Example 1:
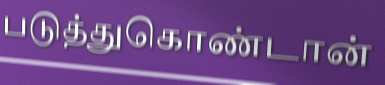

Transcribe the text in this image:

படுத்துகொண்டான்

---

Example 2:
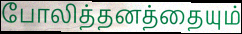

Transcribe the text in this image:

போலித்தனத்தையும்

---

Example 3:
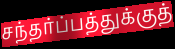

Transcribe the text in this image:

சந்தர்ப்பத்துக்குத்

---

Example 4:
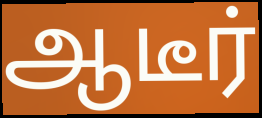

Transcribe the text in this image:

ஆடீர்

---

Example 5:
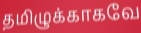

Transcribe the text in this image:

தமிழுக்காகவே